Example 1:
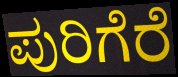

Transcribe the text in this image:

ಪುರಿಗೆರೆ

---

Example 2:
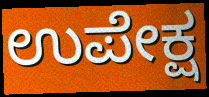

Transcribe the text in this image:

ಉಪೇಕ್ಷ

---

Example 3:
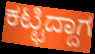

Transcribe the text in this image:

ಕಟ್ಟಿದ್ದಾಗ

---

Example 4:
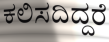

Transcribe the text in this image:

ಕಲಿಸದಿದ್ದರೆ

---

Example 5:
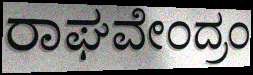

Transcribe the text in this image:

ರಾಘವೇಂದ್ರಂ